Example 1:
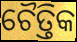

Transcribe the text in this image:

ଚୈତ୍ତିକ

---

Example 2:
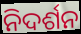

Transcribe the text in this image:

ନିଦର୍ଶନ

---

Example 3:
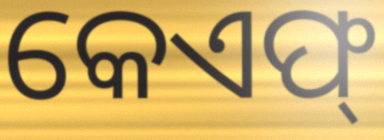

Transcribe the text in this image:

କେଏଫ୍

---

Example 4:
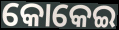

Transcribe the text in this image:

କୋକେଇ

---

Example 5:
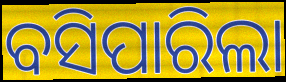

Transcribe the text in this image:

ବସିପାରିଲା